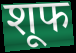
शूफ